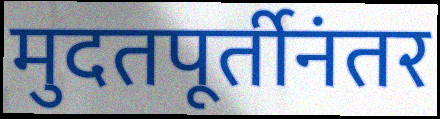
मुदतपूर्तीनंतर